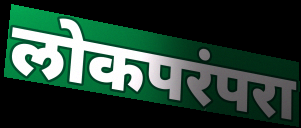
लोकपरंपरा